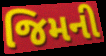
જિમની